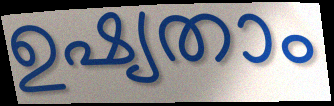
ഉഷ്യതാം